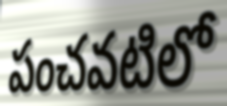
పంచవటిలో